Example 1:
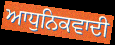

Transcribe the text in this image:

ਆਧੁਨਿਕਵਾਦੀ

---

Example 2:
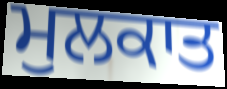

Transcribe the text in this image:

ਮੁਲਕਾਤ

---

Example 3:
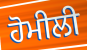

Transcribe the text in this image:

ਹੋਮੀਲੀ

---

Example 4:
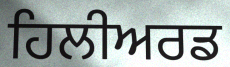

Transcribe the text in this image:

ਹਿਲੀਅਰਡ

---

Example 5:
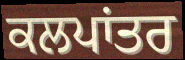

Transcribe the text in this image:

ਕਲਪਾਂਤਰ